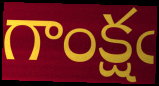
గాంక్షఁ